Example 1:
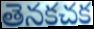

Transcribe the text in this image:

తెనకచక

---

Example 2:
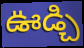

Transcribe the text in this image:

ఊడ్చి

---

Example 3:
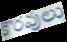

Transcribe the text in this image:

కౌరవులు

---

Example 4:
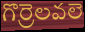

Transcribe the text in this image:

గొర్రెలవలె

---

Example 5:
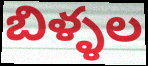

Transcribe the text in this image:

బిళ్ళల